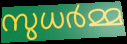
സുധർമ്മ